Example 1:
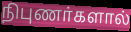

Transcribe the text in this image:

நிபுணர்களால்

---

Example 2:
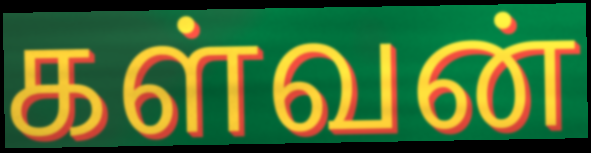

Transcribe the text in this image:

கள்வன்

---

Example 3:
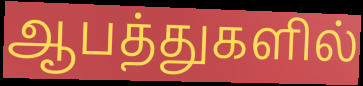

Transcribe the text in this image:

ஆபத்துகளில்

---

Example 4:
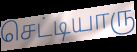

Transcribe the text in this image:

செட்டியாரு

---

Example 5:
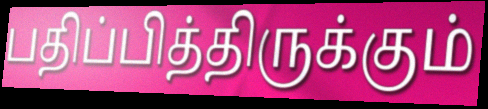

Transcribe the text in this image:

பதிப்பித்திருக்கும்